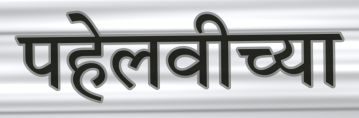
पहेलवीच्या